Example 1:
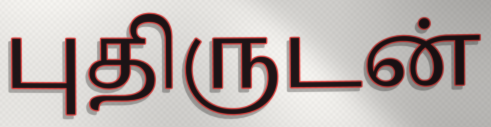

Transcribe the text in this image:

புதிருடன்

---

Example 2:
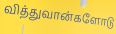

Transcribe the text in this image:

வித்துவான்களோடு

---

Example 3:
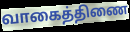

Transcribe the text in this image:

வாகைத்திணை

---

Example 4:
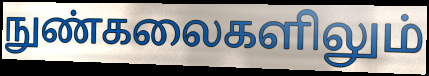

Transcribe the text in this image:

நுண்கலைகளிலும்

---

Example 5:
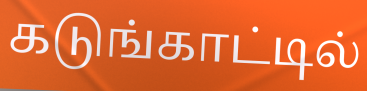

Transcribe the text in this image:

கடுங்காட்டில்